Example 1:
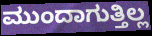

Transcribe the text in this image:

ಮುಂದಾಗುತ್ತಿಲ್ಲ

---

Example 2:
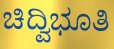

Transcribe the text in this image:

ಚಿದ್ವಿಭೂತಿ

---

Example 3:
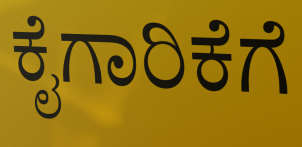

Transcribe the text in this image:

ಕೈಗಾರಿಕೆಗೆ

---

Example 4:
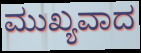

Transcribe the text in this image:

ಮುಖ್ಯವಾದ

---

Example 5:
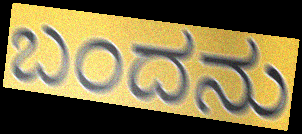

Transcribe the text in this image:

ಬಂದನು